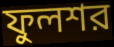
ফুলশর